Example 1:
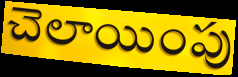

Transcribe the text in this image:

చెలాయింపు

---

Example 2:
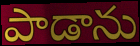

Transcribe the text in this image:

పాడాను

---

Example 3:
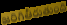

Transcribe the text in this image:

జరిగితీరుతుంది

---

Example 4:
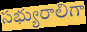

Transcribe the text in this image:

సభ్యురాలిగా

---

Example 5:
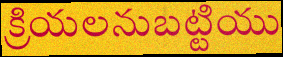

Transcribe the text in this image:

క్రియలనుబట్టియు